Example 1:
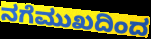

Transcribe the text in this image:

ನಗೆಮುಖದಿಂದ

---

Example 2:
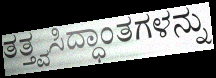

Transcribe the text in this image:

ತತ್ತ್ವಸಿದ್ಧಾಂತಗಳನ್ನು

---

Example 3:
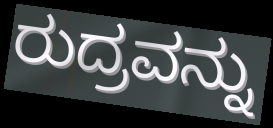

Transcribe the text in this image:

ರುದ್ರವನ್ನು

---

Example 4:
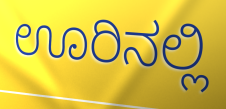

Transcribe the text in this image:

ಊರಿನಲ್ಲಿ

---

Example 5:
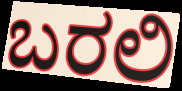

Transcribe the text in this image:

ಬರಲಿ